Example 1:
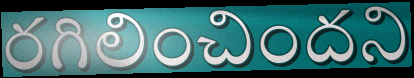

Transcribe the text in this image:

రగిలించిందని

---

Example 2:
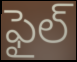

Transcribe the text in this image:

ఫైల్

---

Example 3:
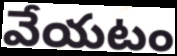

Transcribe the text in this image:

వేయటం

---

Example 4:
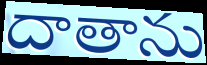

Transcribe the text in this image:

దాతాను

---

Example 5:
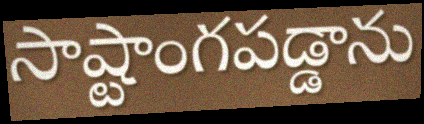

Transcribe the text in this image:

సాష్టాంగపడ్డాను